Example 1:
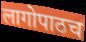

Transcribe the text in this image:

लागोपाठच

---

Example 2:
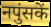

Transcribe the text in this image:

नपुंसकें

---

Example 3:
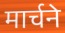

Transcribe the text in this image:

मार्चने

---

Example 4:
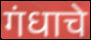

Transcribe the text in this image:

गंधाचे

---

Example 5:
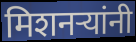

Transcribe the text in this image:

मिशनर्‍यांनी